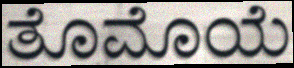
ತೊಮೊಯೆ